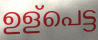
ഉള്പെട്ട